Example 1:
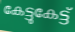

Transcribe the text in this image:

കേട്ടുകേട്ട്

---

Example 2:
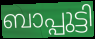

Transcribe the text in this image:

ബാപ്പുട്ടി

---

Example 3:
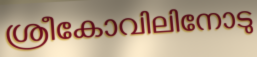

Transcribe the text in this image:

ശ്രീകോവിലിനോടു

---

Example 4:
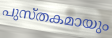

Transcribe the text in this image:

പുസ്തകമായും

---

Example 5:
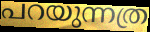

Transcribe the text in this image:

പറയുന്നത്ര